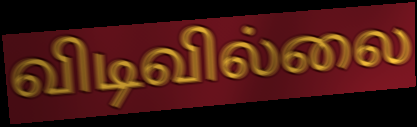
விடிவில்லை